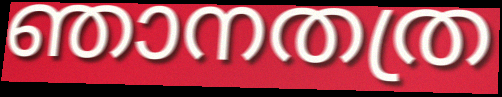
ഞാനതത്ര